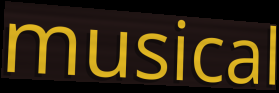
musical